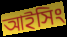
আইসিং